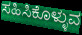
ಸಹಿಸಿಕೊಳ್ಳುವ